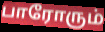
பாரோரும்